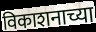
विकाशनाच्या